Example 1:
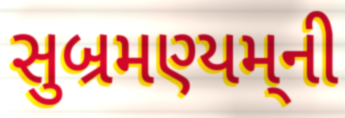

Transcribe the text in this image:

સુબ્રમણ્યમ્‌ની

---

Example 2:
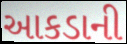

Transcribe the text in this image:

આકડાની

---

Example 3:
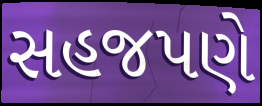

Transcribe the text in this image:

સહજપણે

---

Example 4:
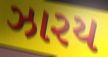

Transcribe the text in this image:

ઝારય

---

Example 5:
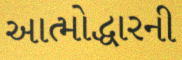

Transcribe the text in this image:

આત્મોદ્ધારની